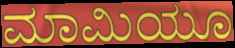
ಮಾಮಿಯೂ